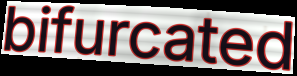
bifurcated